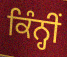
ਕਿੰਨ੍ਹੀਂ